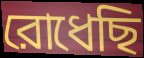
রোধেছি